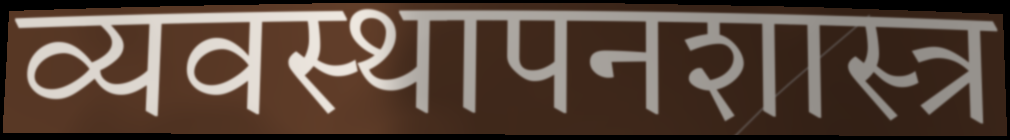
व्यवस्थापनशास्त्र